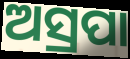
ଅସ୍ରପା